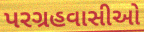
પરગ્રહવાસીઓ